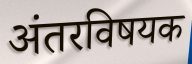
अंतरविषयक